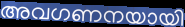
അവഗണനയായി